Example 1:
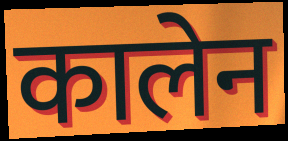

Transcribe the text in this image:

कालेन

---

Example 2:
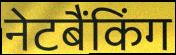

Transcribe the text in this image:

नेटबैंकिंग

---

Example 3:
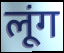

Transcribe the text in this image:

लूंग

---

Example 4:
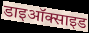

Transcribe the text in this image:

डाइऑक्साइड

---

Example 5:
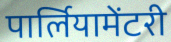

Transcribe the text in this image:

पार्लियामेंटरी